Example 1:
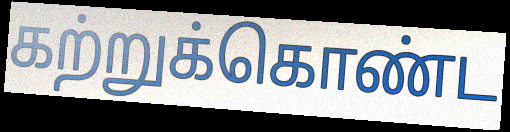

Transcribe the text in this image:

கற்றுக்கொண்ட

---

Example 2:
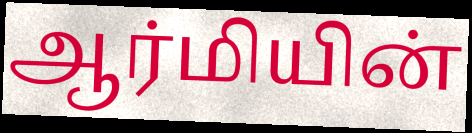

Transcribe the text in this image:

ஆர்மியின்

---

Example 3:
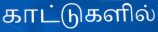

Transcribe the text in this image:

காட்டுகளில்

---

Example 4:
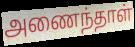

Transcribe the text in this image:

அணைந்தாள்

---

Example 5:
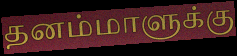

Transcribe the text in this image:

தனம்மாளுக்கு